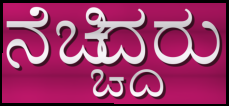
ನೆಚ್ಚಿದ್ದರು